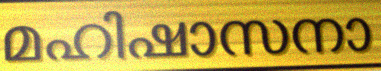
മഹിഷാസനാ